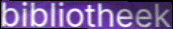
bibliotheek